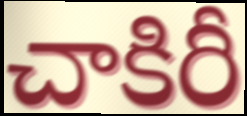
చాకిరీ